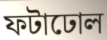
ফটাঢোল